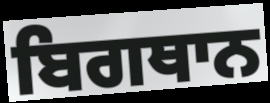
ਬਿਗਥਾਨ